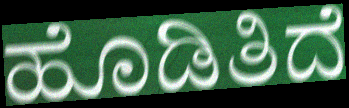
ಹೊಡಿತಿದೆ